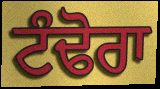
ਟੰਢੋਰਾ